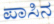
ಪಾಸಿನ